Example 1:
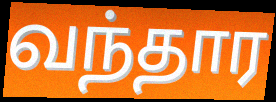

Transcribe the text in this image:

வந்தார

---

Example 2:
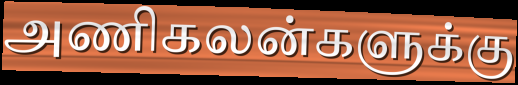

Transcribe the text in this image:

அணிகலன்களுக்கு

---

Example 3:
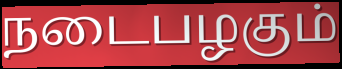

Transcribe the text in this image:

நடைபழகும்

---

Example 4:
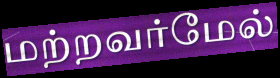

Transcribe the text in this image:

மற்றவர்மேல்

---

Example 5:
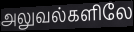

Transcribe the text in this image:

அலுவல்களிலே